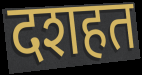
दशहत